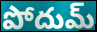
పోదుమ్